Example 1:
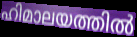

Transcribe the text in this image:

ഹിമാലയത്തിൽ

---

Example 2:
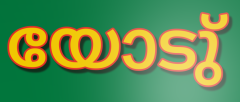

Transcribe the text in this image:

യോടു്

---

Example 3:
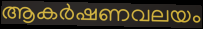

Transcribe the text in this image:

ആകർഷണവലയം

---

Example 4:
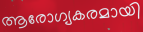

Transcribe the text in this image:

ആരോഗ്യകരമായി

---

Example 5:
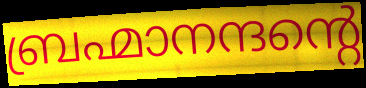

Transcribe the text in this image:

ബ്രഹ്മാനന്ദന്റെ